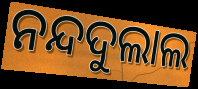
ନନ୍ଦଦୁଲାଲ